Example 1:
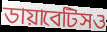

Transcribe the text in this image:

ডায়াবেটিসও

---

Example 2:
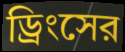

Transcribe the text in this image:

ড্রিংসের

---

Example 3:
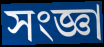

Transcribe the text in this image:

সংজ্ঞা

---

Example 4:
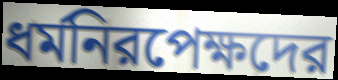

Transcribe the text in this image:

ধর্মনিরপেক্ষদের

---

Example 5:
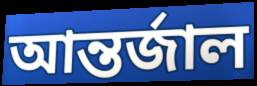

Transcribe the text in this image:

আন্তর্জাল